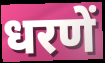
धरणें